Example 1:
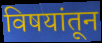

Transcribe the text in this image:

विषयांतून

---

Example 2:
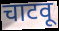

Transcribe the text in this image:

चाटवू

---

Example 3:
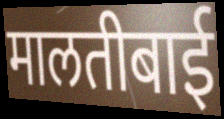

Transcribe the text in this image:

मालतीबाई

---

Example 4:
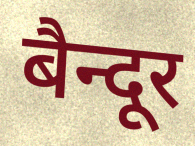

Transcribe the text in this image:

बैन्दूर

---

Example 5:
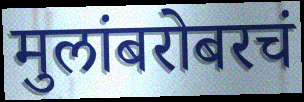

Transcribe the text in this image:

मुलांबरोबरचं